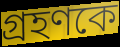
গ্ৰহণকে